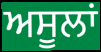
ਅਸੂਲਾਂ